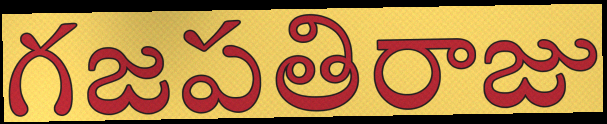
గజపతిరాజు